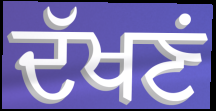
ਦੱਖਣਂ